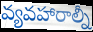
వ్యవహారాల్నీ